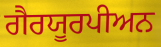
ਗੈਰਯੂਰਪੀਅਨ